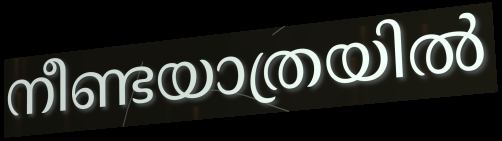
നീണ്ടയാത്രയിൽ